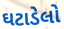
ઘટાડેલો